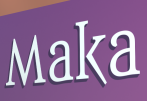
Maka